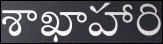
శాఖాహారి